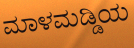
ಮಾಳಮಡ್ಡಿಯ